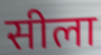
सीला